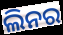
ଲିନର